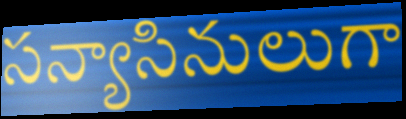
సన్యాసినులుగా